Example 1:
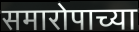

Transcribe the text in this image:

समारोपाच्या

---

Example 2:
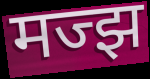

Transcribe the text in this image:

मज्झ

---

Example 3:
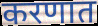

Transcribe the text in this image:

करणात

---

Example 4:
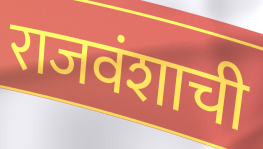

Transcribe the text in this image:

राजवंशाची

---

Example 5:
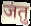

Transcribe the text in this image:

जंतु